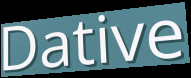
Dative